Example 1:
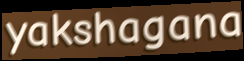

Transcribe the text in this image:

yakshagana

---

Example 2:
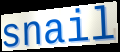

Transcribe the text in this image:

snail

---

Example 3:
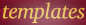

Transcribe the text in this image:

templates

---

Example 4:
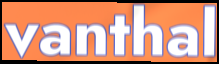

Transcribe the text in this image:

vanthal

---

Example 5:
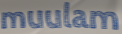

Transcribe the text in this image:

muulam